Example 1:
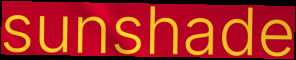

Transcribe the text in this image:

sunshade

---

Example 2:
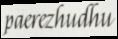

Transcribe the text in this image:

paerezhudhu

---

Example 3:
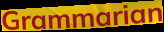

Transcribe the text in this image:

Grammarian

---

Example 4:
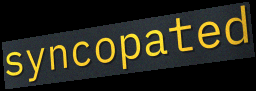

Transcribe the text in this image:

syncopated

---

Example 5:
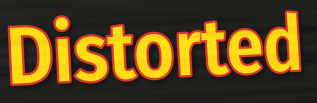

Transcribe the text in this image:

Distorted